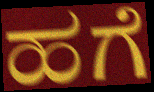
ಹಗೆ